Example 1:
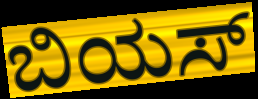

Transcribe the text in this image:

ಬಿಯಸ್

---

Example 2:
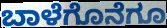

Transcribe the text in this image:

ಬಾಳೆಗೊನೆಗೂ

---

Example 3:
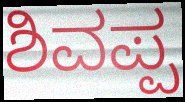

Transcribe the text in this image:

ಶಿವಪ್ಪ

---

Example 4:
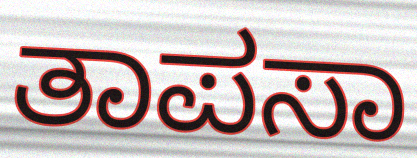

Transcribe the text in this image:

ತಾಪಸಾ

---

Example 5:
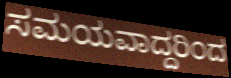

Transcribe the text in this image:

ಸಮಯವಾದ್ದರಿಂದ